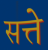
सत्ते